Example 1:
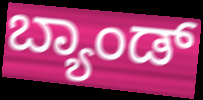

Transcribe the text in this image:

ಬ್ಯಾಂಡ್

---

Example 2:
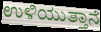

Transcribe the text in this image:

ಉಳಿಯುತ್ತಾನೆ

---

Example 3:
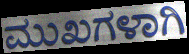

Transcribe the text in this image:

ಮುಖಗಳಾಗಿ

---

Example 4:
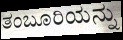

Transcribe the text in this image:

ತಂಬೂರಿಯನ್ನು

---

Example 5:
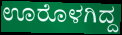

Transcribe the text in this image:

ಊರೊಳಗಿದ್ದ